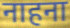
नाहना